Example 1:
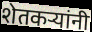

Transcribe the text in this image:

शेतकर्‍यांनी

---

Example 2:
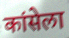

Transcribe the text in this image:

कांसेला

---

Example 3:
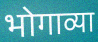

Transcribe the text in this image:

भोगाव्या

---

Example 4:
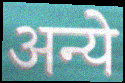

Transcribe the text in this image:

अन्ये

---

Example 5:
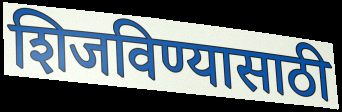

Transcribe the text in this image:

शिजविण्यासाठी